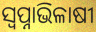
ସ୍ଵପ୍ନାଭିଳାଷୀ